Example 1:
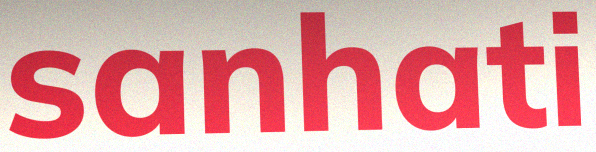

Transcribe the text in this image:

sanhati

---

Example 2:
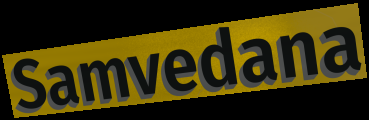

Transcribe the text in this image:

Samvedana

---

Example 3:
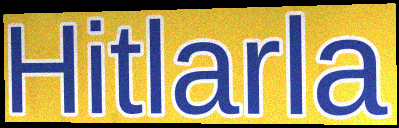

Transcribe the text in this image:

Hitlarla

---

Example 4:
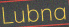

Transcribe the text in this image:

Lubna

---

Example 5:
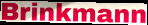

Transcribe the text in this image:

Brinkmann